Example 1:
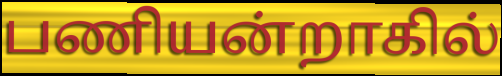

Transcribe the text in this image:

பணியன்றாகில்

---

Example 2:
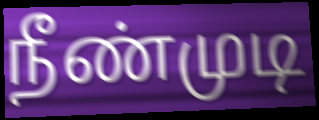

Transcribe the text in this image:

நீண்முடி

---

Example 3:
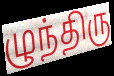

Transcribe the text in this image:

ழுந்திரு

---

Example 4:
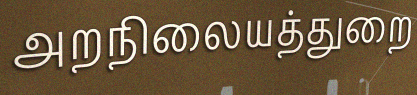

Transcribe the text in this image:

அறநிலையத்துறை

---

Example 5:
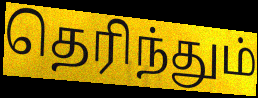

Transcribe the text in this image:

தெரிந்தும்